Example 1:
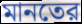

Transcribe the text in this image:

মানতের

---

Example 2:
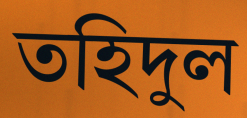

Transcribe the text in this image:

তহিদুল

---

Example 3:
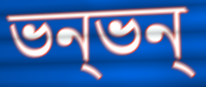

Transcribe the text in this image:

ভন্ভন্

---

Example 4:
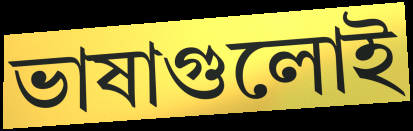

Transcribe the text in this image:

ভাষাগুলোই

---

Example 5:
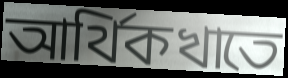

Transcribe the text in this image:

আর্থিকখাতে